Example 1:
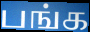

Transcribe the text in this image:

பங்க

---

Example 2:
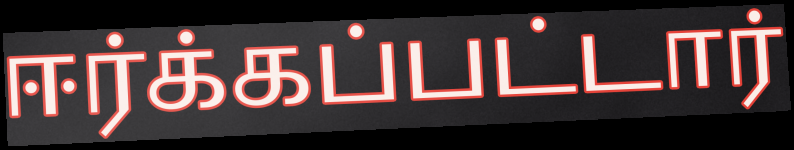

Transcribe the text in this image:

ஈர்க்கப்பட்டார்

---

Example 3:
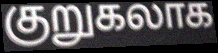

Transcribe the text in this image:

குறுகலாக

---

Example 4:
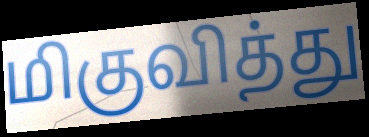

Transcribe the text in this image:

மிகுவித்து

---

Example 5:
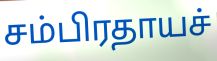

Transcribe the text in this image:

சம்பிரதாயச்